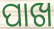
ପାଖ